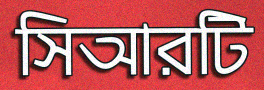
সিআরটি